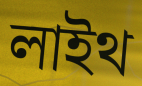
লাইথ